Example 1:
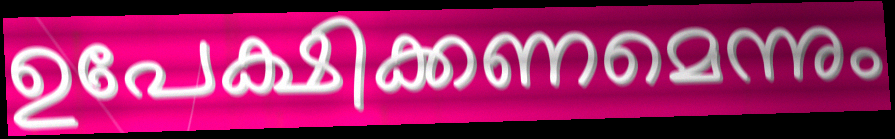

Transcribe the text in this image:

ഉപേക്ഷിക്കണമെന്നും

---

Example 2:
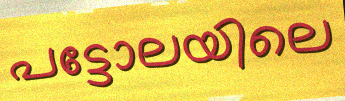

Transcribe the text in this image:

പട്ടോലയിലെ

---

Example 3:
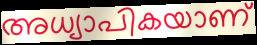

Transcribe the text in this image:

അധ്യാപികയാണ്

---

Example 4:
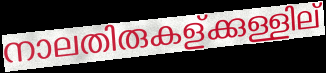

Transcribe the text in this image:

നാലതിരുകള്ക്കുള്ളില്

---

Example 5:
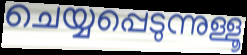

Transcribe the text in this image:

ചെയ്യപ്പെടുന്നുള്ളൂ